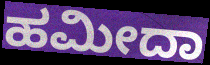
ಹಮೀದಾ